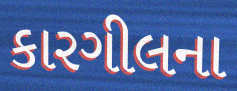
કારગીલના